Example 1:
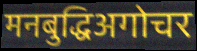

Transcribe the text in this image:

मनबुद्धिअगोचर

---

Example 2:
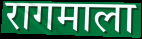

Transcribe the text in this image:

रागमाला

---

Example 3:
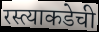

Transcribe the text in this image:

रस्त्याकडेची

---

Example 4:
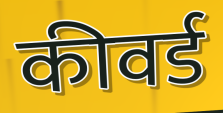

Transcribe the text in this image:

कीवर्ड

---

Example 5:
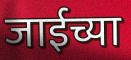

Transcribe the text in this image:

जाईच्या